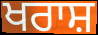
ਖਰਾਸ਼